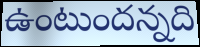
ఉంటుందన్నది